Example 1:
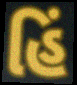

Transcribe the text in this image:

હિં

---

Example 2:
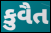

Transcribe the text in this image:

કુવૈત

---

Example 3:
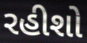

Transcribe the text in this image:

રહીશો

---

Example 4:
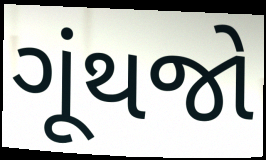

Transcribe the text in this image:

ગૂંથજો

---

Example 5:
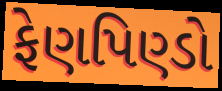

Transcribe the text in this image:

ફેણપિણ્ડો